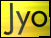
Jyo